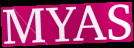
MYAS